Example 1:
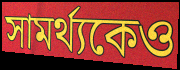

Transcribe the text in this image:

সামর্থ্যকেও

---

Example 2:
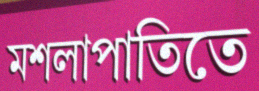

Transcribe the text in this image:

মশলাপাতিতে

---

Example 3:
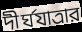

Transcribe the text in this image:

দীর্ঘযাত্রার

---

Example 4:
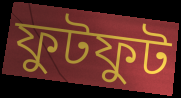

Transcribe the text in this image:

ফুটফুট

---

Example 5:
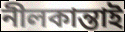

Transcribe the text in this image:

নীলকান্তাই